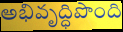
అభివృద్ధిపొంది